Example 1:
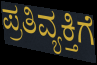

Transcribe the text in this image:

ಪ್ರತಿವ್ಯಕ್ತಿಗೆ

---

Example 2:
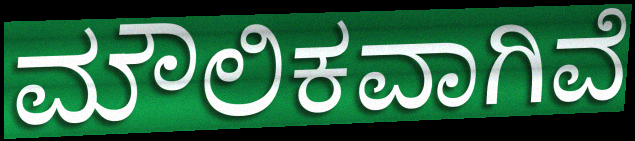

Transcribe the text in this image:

ಮೌಲಿಕವಾಗಿವೆ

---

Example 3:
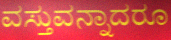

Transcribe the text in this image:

ವಸ್ತುವನ್ನಾದರೂ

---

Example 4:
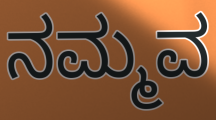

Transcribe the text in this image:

ನಮ್ಮವ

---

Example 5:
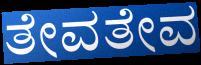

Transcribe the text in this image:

ತೇವತೇವ